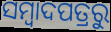
ସମ୍ବାଦପତ୍ରରୁ